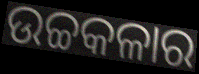
ଉଚ୍ଚକଳାର